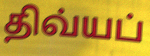
திவ்யப்